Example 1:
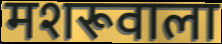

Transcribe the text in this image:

मशरूवाला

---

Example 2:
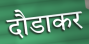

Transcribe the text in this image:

दौडाकर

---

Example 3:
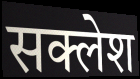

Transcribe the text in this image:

सक्लेश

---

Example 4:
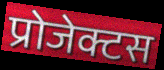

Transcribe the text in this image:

प्रोजेक्टस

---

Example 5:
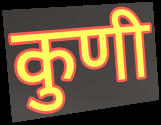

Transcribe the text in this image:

कुणी